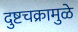
दुष्टचक्रामुळे